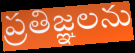
ప్రతిజ్ఞలను